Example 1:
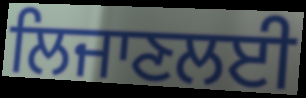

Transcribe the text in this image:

ਲਿਜਾਣਲਈ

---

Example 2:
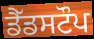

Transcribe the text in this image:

ਡੈੱਡਸਟੌਪ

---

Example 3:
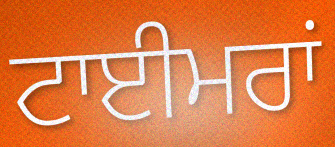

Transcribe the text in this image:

ਟਾਈਮਰਾਂ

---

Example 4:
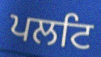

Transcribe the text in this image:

ਪਲਟਿ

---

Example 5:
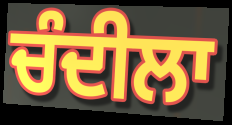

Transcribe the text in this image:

ਚੰਦੀਲਾ